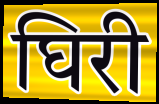
घिरी